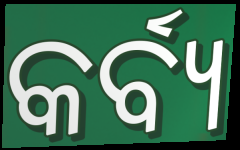
କର୍ବ୍ୟ